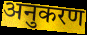
अनुकरण